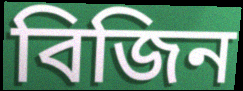
বিজিন